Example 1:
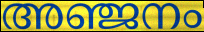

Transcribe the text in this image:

അഞ്ജനം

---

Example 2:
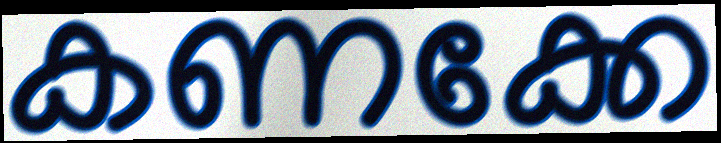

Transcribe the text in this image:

കണക്കേ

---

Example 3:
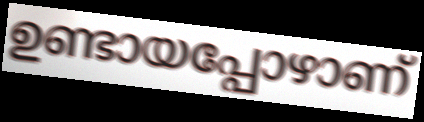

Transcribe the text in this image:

ഉണ്ടായപ്പോഴാണ്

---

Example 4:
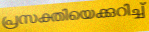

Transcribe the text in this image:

പ്രസക്തിയെക്കുറിച്ച്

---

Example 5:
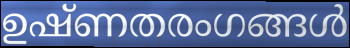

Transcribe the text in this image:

ഉഷ്ണതരംഗങ്ങൾ